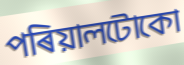
পৰিয়ালটোকো